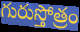
గురుస్తోత్రం